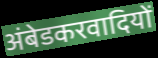
अंबेडकरवादियों